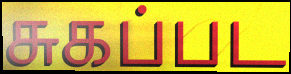
சுகப்பட